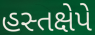
હસ્તક્ષેપે